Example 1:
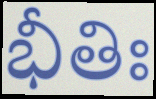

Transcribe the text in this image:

భీతిః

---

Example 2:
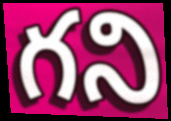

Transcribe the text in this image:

గని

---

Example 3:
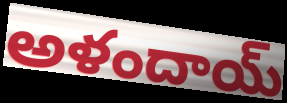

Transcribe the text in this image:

అళందాయ్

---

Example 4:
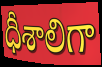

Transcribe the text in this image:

ధీశాలిగా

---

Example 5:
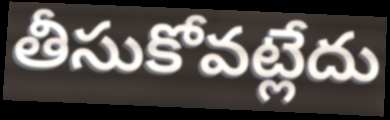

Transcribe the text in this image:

తీసుకోవట్లేదు